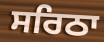
ਸਰਿਠਾ